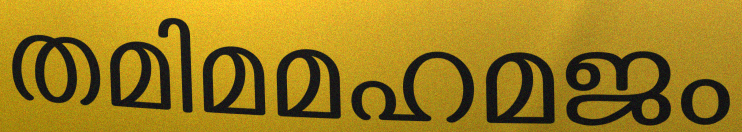
തമിമമഹമജം